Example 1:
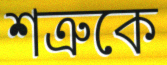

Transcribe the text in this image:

শত্রুকে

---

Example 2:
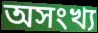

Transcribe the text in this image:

অসংখ্য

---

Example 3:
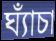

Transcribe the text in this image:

ঘ্যাঁচা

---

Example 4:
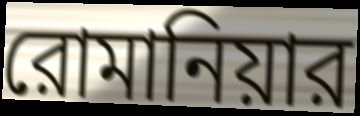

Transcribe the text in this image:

রোমানিয়ার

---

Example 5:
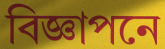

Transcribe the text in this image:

বিজ্ঞাপনে